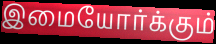
இமையோர்க்கும்